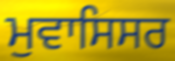
ਮੁਵਾਸਿਸਰ